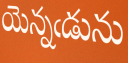
యెన్నఁడును